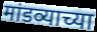
मांडव्याच्या